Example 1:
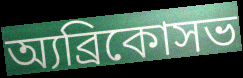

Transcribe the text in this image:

অ্যব্রিকোসভ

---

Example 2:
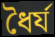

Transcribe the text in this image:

ধৈর্য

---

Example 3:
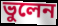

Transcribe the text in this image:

ভুলেন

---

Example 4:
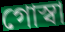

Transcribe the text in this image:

গোস্বা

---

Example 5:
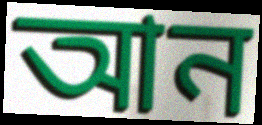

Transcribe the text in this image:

আন